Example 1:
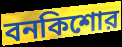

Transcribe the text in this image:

বনকিশোর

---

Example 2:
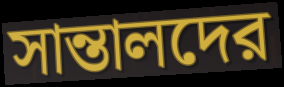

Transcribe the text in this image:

সান্তালদের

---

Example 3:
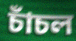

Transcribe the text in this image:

চাঁচল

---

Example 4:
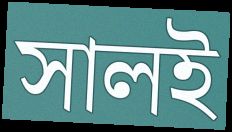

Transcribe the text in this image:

সালই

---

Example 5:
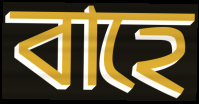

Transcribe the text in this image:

বাহে